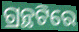
ଗ୍ରନ୍ଥଟିରେ